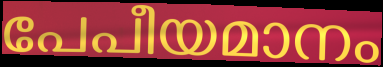
പേപീയമാനം